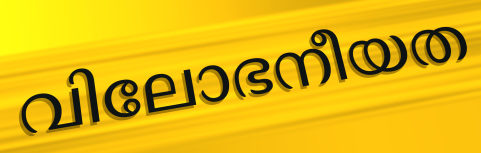
വിലോഭനീയത